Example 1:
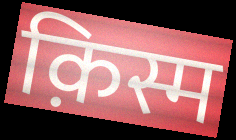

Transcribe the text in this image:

क़िस्‍म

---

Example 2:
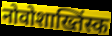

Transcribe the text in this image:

नोवोशाख्तिंस्क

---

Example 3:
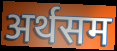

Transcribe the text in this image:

अर्थसम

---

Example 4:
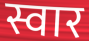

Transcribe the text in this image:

स्‍वार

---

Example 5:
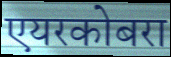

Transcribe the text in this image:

एयरकोबरा